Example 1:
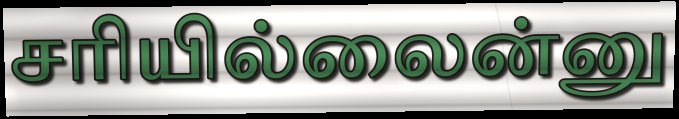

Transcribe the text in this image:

சரியில்லைன்னு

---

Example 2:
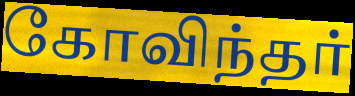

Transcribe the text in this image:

கோவிந்தர்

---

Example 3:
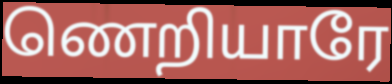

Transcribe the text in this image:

ணெறியாரே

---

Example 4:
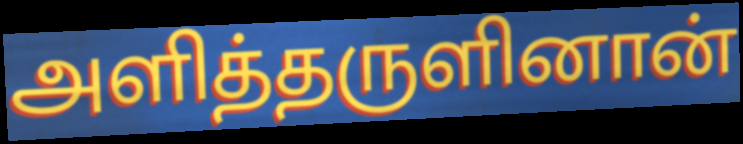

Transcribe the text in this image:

அளித்தருளினான்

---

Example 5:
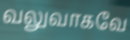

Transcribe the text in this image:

வலுவாகவே